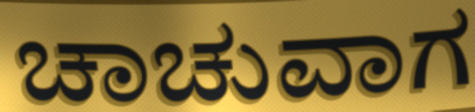
ಚಾಚುವಾಗ